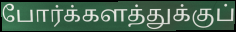
போர்க்களத்துக்குப்